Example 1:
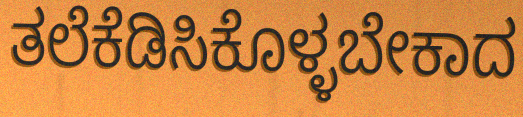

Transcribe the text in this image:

ತಲೆಕೆಡಿಸಿಕೊಳ್ಳಬೇಕಾದ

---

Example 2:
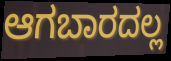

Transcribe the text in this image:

ಆಗಬಾರದಲ್ಲ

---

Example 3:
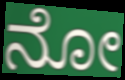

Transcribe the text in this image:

ನೋ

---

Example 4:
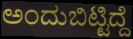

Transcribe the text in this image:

ಅಂದುಬಿಟ್ಟಿದ್ದೆ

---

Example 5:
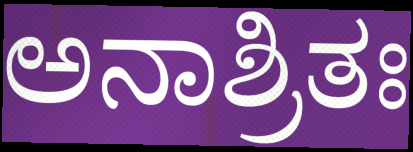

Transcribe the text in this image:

ಅನಾಶ್ರಿತಃ